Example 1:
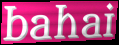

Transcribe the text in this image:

bahai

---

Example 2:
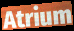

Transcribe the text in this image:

Atrium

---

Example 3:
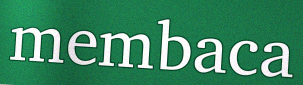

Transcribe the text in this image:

membaca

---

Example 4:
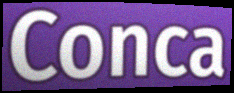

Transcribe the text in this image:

Conca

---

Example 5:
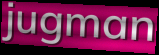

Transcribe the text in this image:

jugman